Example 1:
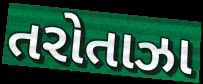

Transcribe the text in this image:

તરોતાઝા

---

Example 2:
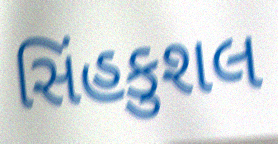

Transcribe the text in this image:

સિંહકુશલ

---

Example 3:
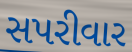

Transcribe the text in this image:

સપરીવાર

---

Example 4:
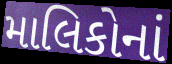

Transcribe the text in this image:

માલિકોનાં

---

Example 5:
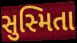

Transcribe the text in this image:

સુસ્મિતા